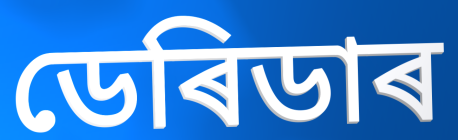
ডেৰিডাৰ